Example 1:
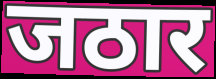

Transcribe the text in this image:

जठार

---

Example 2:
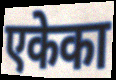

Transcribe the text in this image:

एकेका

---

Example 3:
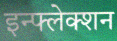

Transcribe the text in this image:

इन्फ्लेक्शन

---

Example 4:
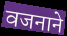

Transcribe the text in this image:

वजनाने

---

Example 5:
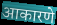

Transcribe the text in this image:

आकारणे